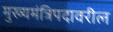
मुख्यमंत्रिपदावरील